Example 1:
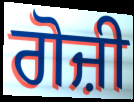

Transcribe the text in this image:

ਗੋਜ਼ੀ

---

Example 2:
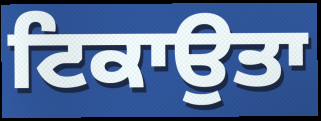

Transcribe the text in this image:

ਟਿਕਾਉਤਾ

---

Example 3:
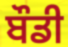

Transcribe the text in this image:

ਬੌਡੀ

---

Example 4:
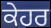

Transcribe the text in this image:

ਕੇਹਰ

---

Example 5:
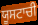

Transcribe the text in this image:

ਯੂਸਟਾਚੀ